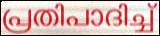
പ്രതിപാദിച്ച്